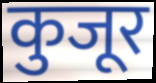
कुजूर